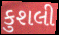
કુશલી